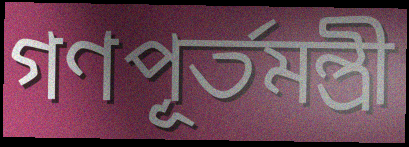
গণপূর্তমন্ত্রী